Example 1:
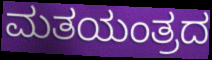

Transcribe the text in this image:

ಮತಯಂತ್ರದ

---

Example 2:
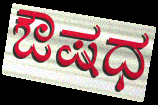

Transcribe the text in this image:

ಔಷಧ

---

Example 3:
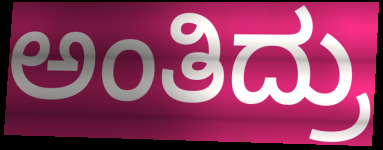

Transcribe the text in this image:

ಅಂತಿದ್ರು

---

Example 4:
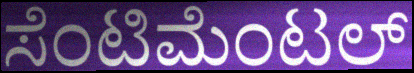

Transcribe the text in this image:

ಸೆಂಟಿಮೆಂಟಲ್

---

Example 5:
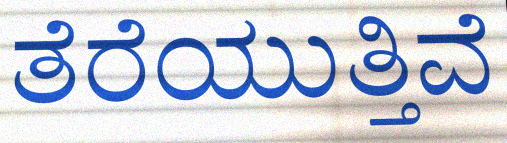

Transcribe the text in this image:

ತೆರೆಯುತ್ತಿವೆ